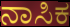
ನಾಸಿಕ